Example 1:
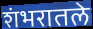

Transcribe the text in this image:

शंभरातले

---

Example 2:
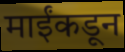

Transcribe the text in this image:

माईंकडून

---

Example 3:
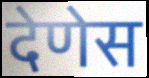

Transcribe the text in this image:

देणेस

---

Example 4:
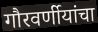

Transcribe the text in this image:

गौरवर्णीयांचा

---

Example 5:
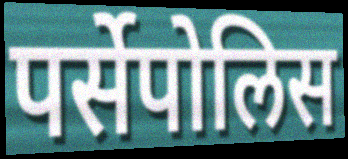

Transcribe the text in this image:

पर्सेपोलिस